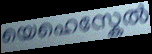
യെഹെസ്കേൽ